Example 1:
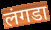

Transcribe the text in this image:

लंगडा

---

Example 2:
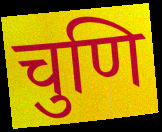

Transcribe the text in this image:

चुणि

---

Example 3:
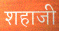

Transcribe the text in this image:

शहाजी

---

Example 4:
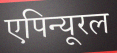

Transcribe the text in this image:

एपिन्यूरल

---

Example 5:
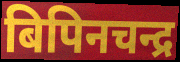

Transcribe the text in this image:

बिपिनचन्द्र